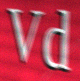
Vd